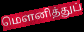
மெளனித்துப்